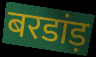
बरडांड़